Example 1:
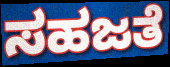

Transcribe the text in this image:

ಸಹಜತೆ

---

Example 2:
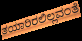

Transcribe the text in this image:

ತಯಾರಿರಲಿಲ್ಲವಂತೆ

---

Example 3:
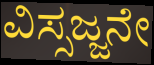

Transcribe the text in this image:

ವಿಸ್ಸಜ್ಜನೇ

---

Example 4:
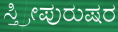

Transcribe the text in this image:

ಸ್ತ್ರೀಪುರುಷರ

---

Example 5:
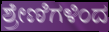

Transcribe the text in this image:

ಶ್ರೇಣಿಗಳಿಂದ